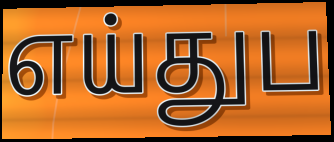
எய்துப